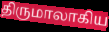
திருமாலாகிய